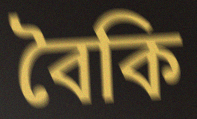
বৈকি